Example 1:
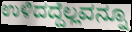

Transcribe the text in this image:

ಉಳಿದದ್ದೆಲ್ಲವನ್ನೂ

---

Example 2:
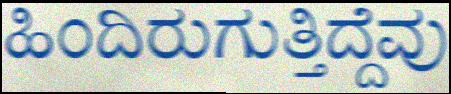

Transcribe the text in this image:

ಹಿಂದಿರುಗುತ್ತಿದ್ದೆವು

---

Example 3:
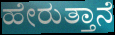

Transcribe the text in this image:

ಹೇರುತ್ತಾನೆ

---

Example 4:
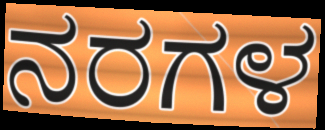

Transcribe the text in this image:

ನರಗಳ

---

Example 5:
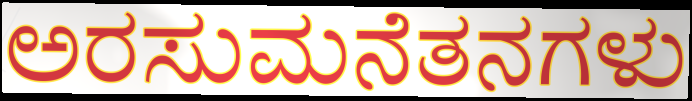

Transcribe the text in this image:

ಅರಸುಮನೆತನಗಳು